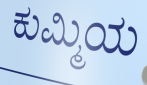
ಕುಮ್ಮಿಯ